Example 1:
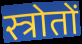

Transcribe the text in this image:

स्त्रोतों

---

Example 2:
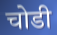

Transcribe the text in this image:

चोडी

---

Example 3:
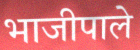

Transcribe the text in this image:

भाजीपाले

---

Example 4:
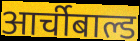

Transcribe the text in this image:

आर्चीबाल्ड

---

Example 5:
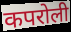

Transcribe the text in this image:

कपरोली